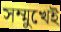
সম্মুখেই